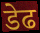
डेढ